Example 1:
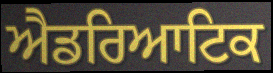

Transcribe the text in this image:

ਐਡਰਿਆਟਿਕ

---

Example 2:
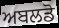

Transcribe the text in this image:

ਅਬਲਡੋ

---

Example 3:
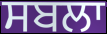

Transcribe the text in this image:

ਸਬਲਾ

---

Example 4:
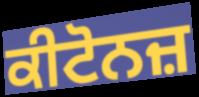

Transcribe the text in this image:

ਕੀਟੋਨਜ਼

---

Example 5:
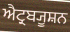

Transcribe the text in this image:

ਐਟ੍ਰਬ੍ਯੂਸ਼ਨ